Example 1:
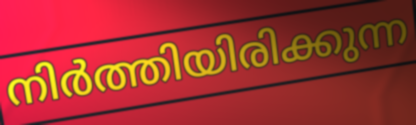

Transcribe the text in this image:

നിർത്തിയിരിക്കുന്ന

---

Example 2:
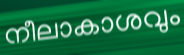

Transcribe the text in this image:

നീലാകാശവും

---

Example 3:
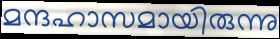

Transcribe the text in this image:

മന്ദഹാസമായിരുന്നു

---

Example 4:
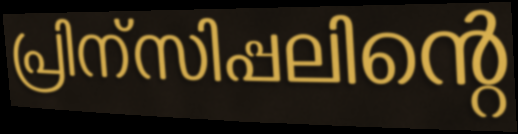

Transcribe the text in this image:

പ്രിന്സിപ്പലിന്റെ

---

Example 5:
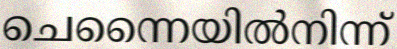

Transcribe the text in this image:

ചെന്നൈയിൽനിന്ന്